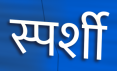
स्पर्शी